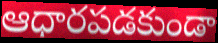
ఆధారపడకుండా